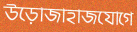
উড়োজাহাজযোগে